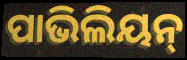
ପାଭିଲିୟନ୍